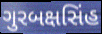
ગુરબક્ષસિંહ